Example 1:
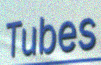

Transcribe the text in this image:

Tubes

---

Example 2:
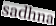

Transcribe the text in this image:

sadhna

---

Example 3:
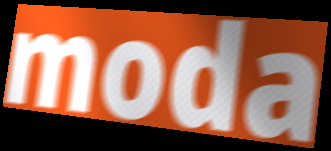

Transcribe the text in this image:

moda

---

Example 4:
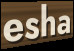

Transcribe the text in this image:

esha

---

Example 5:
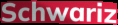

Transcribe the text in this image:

Schwariz